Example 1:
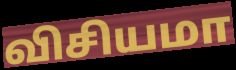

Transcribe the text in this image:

விசியமா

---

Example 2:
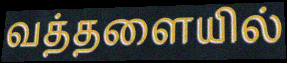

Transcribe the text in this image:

வத்தளையில்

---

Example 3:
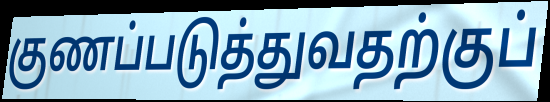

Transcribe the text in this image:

குணப்படுத்துவதற்குப்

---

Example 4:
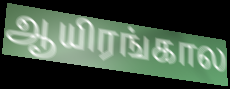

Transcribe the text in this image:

ஆயிரங்கால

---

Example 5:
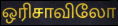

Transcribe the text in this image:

ஒரிசாவிலோ